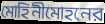
মোহিনীমোহনের